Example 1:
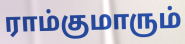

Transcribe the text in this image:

ராம்குமாரும்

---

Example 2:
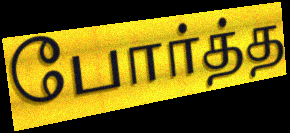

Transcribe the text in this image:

போர்த்த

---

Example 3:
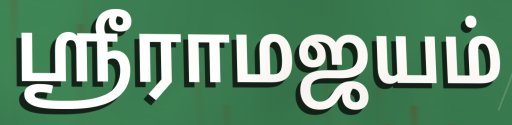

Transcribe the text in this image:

ஸ்ரீராமஜயம்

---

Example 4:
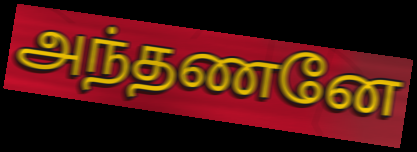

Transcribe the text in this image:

அந்தணனே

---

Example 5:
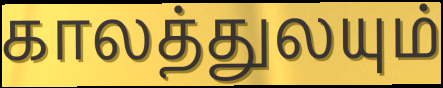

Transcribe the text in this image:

காலத்துலயும்